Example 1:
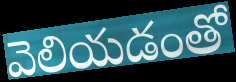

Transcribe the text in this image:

వెలియడంతో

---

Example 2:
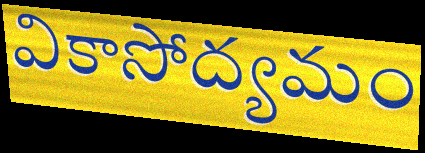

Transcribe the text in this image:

వికాసోద్యమం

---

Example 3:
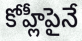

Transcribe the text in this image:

కోహ్లీపైనే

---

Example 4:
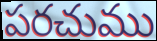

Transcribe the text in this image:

పరచుము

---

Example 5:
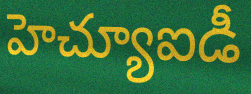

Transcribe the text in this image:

హెచ్యూఐడీ